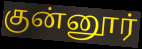
குன்னூர்